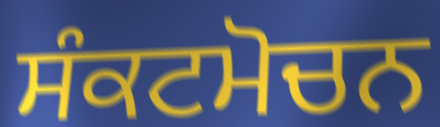
ਸੰਕਟਮੋਚਨ